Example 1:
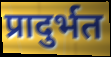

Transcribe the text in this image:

प्रादुर्भत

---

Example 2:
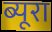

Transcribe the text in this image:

ब्यूरा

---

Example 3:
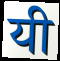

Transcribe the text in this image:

यी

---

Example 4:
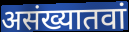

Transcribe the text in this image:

असंख्यातवां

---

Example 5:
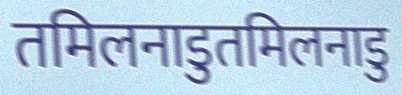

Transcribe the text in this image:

तमिलनाडुतमिलनाडु